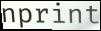
nprint